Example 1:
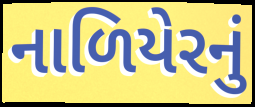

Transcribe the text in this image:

નાળિયેરનું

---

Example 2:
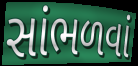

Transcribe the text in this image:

સાંભળવાં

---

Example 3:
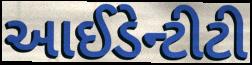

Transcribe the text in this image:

આઈડેન્ટીટી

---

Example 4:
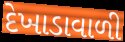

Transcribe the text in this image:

દેખાડાવાળી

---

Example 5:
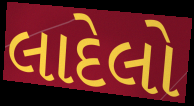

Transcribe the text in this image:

લાદેલો